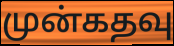
முன்கதவு